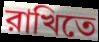
রাখিতে